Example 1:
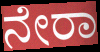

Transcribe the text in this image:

ನೇರಾ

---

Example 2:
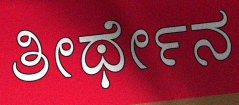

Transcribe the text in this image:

ತೀರ್ಥೇನ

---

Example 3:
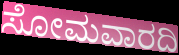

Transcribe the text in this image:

ಸೋಮವಾರದಿ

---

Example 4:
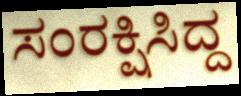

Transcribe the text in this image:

ಸಂರಕ್ಷಿಸಿದ್ದ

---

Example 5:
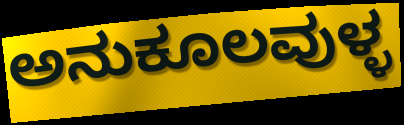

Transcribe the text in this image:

ಅನುಕೂಲವುಳ್ಳ